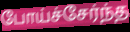
போய்ச்சேர்ந்த